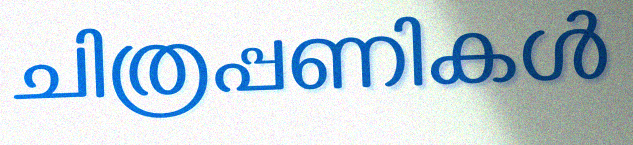
ചിത്രപ്പണികൾ